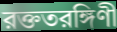
রক্ততরঙ্গিণী